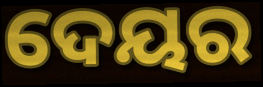
ଦେୟର